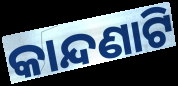
କାନ୍ଦଣାଟି